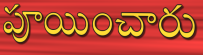
పూయించారు